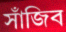
সাঁজিব